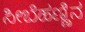
ಸೀಬೆಹಣ್ಣಿನ